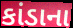
કાંડાના